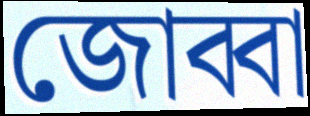
জোব্বা